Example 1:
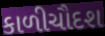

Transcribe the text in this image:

કાળીચૌદશ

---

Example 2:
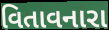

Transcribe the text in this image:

વિતાવનારા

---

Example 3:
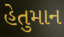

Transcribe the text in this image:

હેતુમાન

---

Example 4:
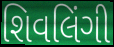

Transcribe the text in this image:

શિવલિંગી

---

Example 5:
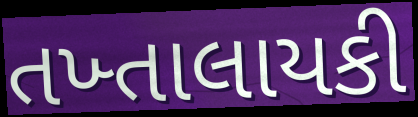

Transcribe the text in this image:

તખ્તાલાયકી